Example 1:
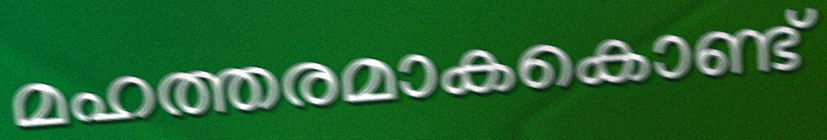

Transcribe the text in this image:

മഹത്തരമാകകൊണ്ട്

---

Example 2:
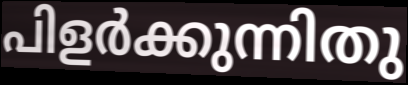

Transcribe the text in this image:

പിളർക്കുന്നിതു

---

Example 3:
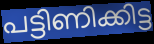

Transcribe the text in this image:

പട്ടിണിക്കിട്ട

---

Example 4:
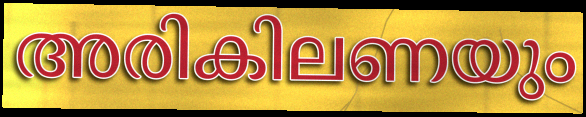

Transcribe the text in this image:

അരികിലണയും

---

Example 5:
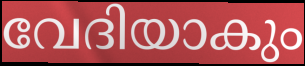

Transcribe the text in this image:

വേദിയാകും